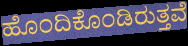
ಹೊಂದಿಕೊಂಡಿರುತ್ತವೆ